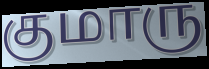
குமாரு